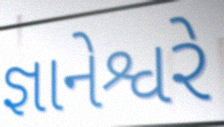
જ્ઞાનેશ્વરે